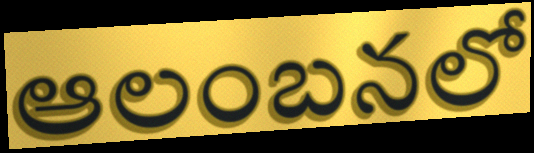
ఆలంబనలో